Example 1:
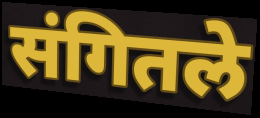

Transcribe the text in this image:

संगितले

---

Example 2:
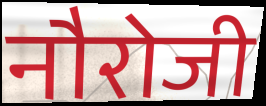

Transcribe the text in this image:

नौरोजी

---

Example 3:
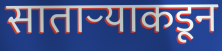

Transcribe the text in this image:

साताऱ्याकडून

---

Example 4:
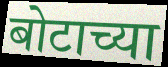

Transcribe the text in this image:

बोटाच्या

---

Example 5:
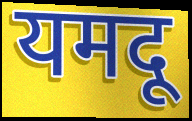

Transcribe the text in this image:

यमदू